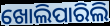
ଖୋଲିପାରିଲି